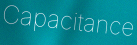
Capacitance